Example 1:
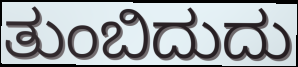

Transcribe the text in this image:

ತುಂಬಿದುದು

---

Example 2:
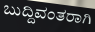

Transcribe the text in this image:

ಬುದ್ದಿವಂತರಾಗಿ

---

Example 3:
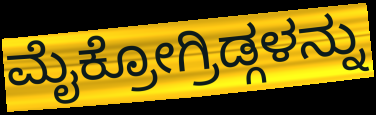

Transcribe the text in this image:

ಮೈಕ್ರೋಗ್ರಿಡ್ಗಳನ್ನು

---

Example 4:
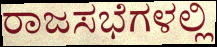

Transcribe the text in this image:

ರಾಜಸಭೆಗಳಲ್ಲಿ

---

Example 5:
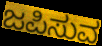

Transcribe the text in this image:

ಜಪಿಸುವ